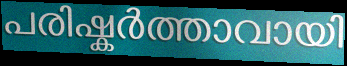
പരിഷ്കർത്താവായി